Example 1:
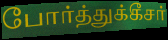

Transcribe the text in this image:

போர்த்துக்கீசர்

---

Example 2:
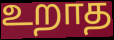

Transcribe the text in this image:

உறாத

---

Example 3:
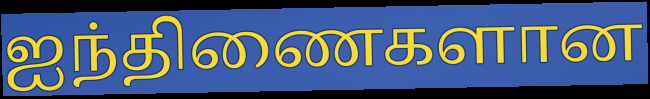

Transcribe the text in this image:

ஐந்திணைகளான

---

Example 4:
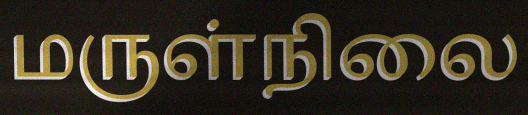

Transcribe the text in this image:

மருள்நிலை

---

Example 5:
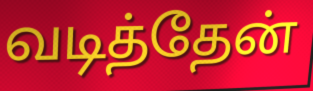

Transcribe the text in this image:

வடித்தேன்